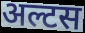
अल्टस